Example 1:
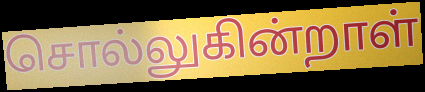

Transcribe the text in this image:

சொல்லுகின்றாள்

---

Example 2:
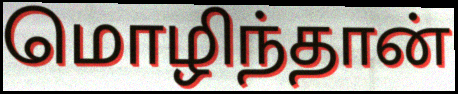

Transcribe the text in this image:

மொழிந்தான்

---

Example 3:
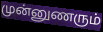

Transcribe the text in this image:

முன்னுணரும்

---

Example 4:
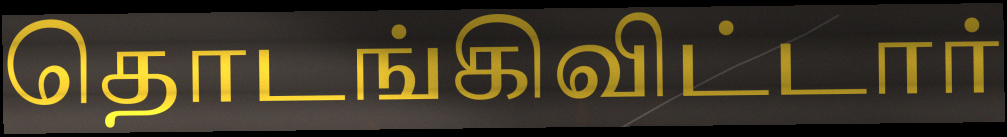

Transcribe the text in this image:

தொடங்கிவிட்டார்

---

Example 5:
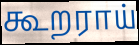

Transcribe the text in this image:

கூறராய்